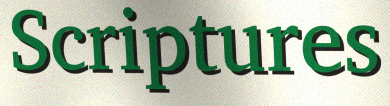
Scriptures